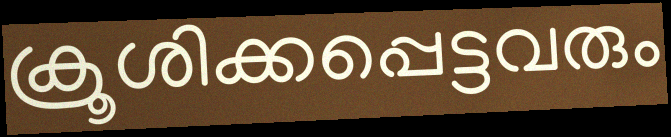
ക്രൂശിക്കപ്പെട്ടവരും